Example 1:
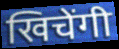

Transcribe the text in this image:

खिचेंगी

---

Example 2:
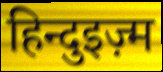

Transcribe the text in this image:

हिन्दुइज़्म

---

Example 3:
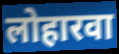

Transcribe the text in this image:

लोहारवा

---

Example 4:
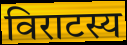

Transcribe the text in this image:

विराटस्य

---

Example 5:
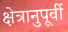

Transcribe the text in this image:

क्षेत्रानुपूर्वी